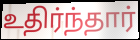
உதிர்ந்தார்